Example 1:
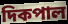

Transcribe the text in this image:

দিকপাল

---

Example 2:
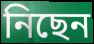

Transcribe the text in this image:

নিছেন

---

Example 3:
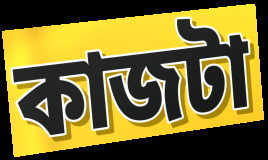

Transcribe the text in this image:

কাজটা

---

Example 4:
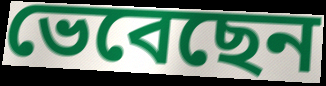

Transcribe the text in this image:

ভেবেছেন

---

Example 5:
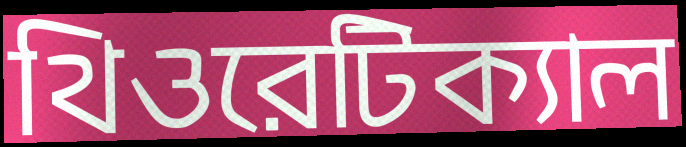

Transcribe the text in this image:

থিওরেটিক্যাল